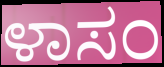
ಳಾಸಂ